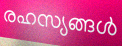
രഹസ്യങ്ങൾ